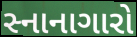
સ્નાનાગારો